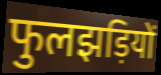
फुलझड़ियों